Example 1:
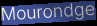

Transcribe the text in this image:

Mourondge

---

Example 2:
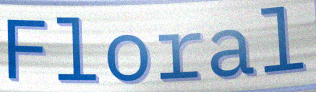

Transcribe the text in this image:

Floral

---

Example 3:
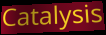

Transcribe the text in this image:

Catalysis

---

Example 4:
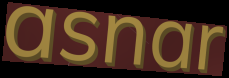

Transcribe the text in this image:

asnar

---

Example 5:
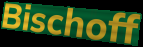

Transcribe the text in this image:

Bischoff